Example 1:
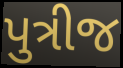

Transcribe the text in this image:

પુત્રીજ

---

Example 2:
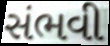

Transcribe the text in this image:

સંભવી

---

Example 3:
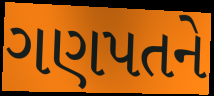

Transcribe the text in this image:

ગણપતને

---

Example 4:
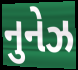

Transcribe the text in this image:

નુનેઝ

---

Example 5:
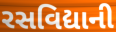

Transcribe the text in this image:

રસવિદ્યાની